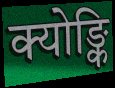
क्योङ्कि